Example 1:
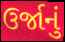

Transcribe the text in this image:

ઉર્જાનું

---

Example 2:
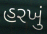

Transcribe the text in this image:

હરખું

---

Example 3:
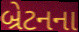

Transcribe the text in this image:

બ્રેટનના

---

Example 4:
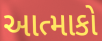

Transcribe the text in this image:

આત્માકો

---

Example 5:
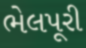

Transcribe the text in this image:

ભેલપૂરી